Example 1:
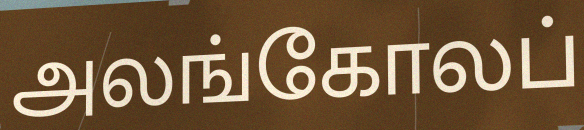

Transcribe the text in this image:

அலங்கோலப்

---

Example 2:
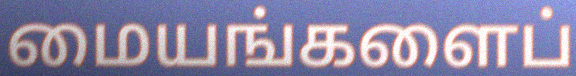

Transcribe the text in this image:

மையங்களைப்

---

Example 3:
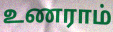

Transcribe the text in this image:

உணராம்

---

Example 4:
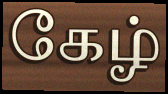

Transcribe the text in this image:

கேழ்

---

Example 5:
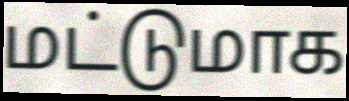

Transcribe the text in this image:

மட்டுமாக